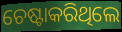
ଚେଷ୍ଟାକରିଥିଲେ